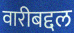
वारीबद्दल